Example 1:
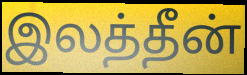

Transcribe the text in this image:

இலத்தீன்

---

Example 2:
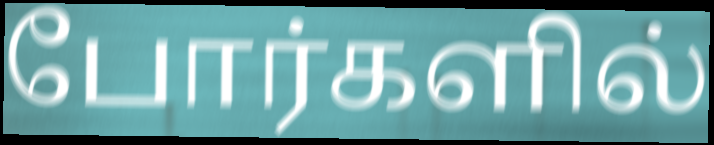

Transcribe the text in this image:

போர்களில்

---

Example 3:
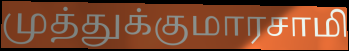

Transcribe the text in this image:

முத்துக்குமாரசாமி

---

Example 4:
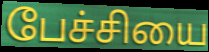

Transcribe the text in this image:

பேச்சியை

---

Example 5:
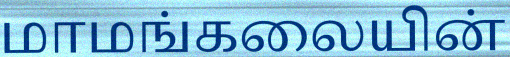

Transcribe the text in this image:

மாமங்கலையின்